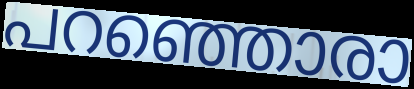
പറഞ്ഞൊരാ